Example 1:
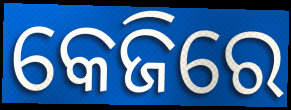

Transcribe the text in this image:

କେଜିରେ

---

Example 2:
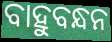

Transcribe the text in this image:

ବାହୁବନ୍ଧନ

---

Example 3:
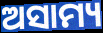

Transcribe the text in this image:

ଅସାମ୍ୟ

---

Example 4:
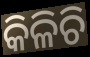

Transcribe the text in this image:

କିଳିଚି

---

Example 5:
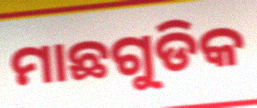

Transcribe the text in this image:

ମାଛଗୁଡିକ